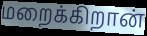
மறைக்கிறான்